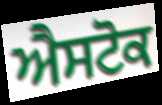
ਐਸਟੋਕ